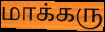
மாக்கரு